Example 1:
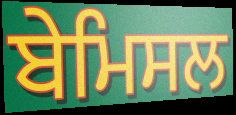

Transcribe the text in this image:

ਬੇਮਿਸਲ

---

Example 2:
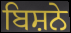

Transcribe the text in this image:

ਬਿਸ਼ਨੇ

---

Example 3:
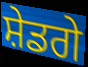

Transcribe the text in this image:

ਸ਼ੇਡਗੇ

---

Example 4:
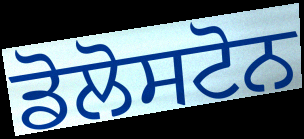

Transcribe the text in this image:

ਡੋਲੋਸਟੋਨ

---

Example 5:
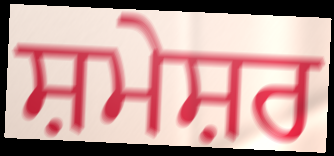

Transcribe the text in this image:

ਸ਼ਮੇਸ਼ਰ